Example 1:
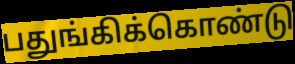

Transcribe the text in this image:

பதுங்கிக்கொண்டு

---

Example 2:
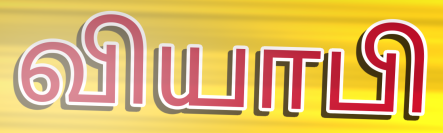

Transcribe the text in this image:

வியாபி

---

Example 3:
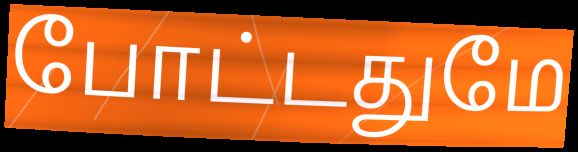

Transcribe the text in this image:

போட்டதுமே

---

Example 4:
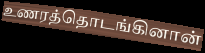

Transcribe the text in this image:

உணரத்தொடங்கினான்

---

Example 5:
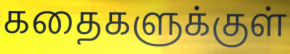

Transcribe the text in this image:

கதைகளுக்குள்